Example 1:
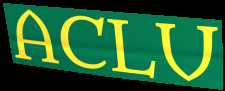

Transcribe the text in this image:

ACLU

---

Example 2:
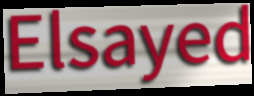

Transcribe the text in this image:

Elsayed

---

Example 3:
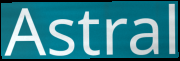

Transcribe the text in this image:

Astral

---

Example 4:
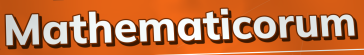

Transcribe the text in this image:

Mathematicorum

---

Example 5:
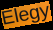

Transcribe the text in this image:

Elegy